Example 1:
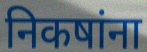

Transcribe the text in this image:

निकषांना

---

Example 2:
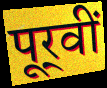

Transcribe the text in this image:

पूर्वीं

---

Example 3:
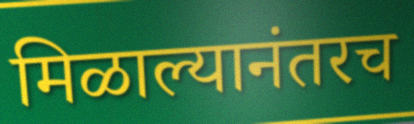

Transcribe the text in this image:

मिळाल्यानंतरच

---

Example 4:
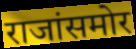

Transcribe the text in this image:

राजांसमोर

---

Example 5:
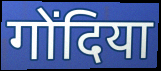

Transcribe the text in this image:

गोंदिया